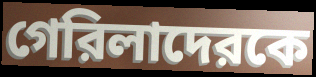
গেরিলাদেরকে